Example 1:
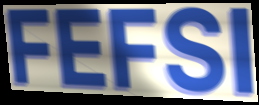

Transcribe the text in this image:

FEFSI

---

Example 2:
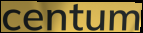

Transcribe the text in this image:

centum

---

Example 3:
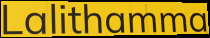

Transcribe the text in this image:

Lalithamma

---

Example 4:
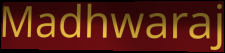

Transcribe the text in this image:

Madhwaraj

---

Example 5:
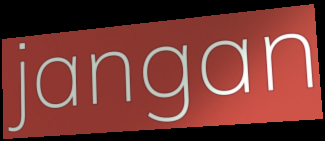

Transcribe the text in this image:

jangan